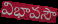
విభావసౌ